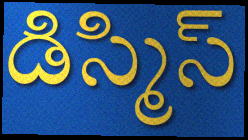
డిస్మిస్